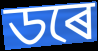
ডৰে